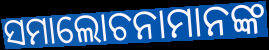
ସମାଲୋଚନାମାନଙ୍କ